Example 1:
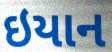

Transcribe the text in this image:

ઇયાન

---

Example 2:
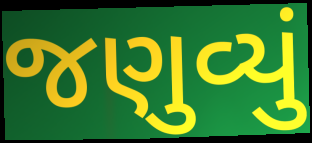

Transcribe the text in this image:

જણુવ્યું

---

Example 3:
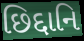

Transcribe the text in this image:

છિદ્દાનિ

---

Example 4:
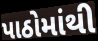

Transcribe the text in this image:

પાઠોમાંથી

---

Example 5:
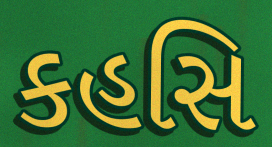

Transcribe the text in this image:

કહસિ